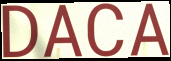
DACA